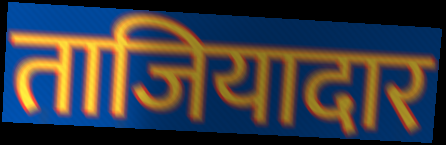
ताजियादार